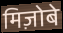
मिज़ोबे